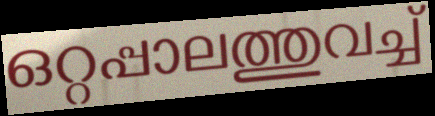
ഒറ്റപ്പാലത്തുവച്ച്